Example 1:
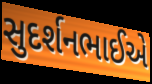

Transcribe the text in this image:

સુદર્શનભાઈએ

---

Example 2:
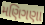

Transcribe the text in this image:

મણિગણા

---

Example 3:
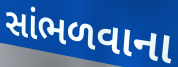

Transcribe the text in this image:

સાંભળવાના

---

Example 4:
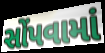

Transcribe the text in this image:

સોંપવામાં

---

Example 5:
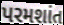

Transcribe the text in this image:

પરમશાંત